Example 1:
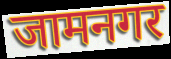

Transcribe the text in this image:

जामनगर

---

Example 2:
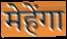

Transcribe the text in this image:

मेहेंगा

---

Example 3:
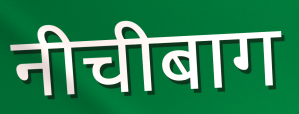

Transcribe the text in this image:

नीचीबाग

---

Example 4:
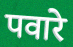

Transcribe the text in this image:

पवारे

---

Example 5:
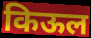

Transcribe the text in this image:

किऊल